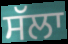
ਸੱਲਾ